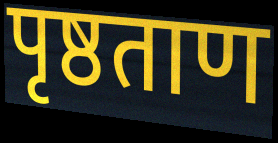
पृष्ठताण